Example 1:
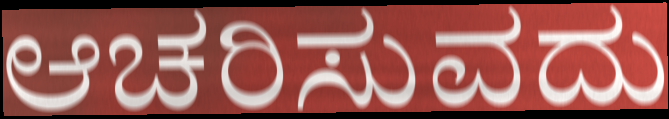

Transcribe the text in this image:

ಆಚರಿಸುವದು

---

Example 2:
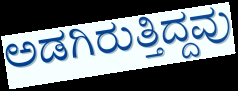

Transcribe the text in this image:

ಅಡಗಿರುತ್ತಿದ್ದವು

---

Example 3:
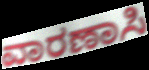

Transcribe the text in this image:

ವಾರಣಾಸಿ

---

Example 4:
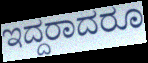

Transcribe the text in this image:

ಇದ್ದರಾದರೂ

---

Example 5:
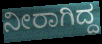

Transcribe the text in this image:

ನೀರಾಗಿದ್ದ